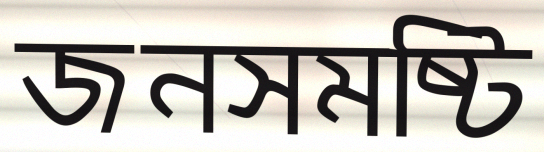
জনসমষ্টি